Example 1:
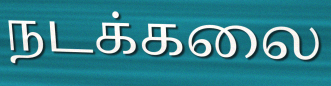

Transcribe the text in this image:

நடக்கலை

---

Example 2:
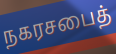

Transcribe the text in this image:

நகரசபைத்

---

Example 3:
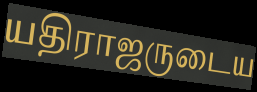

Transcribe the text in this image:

யதிராஜருடைய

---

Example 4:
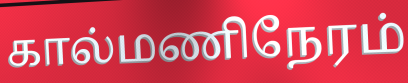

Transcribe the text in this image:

கால்மணிநேரம்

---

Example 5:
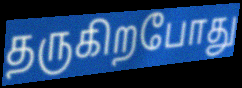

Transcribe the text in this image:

தருகிறபோது